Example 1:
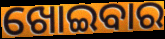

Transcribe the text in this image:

ଖୋଇବାର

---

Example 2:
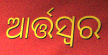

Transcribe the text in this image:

ଆର୍ତ୍ତସ୍ୱର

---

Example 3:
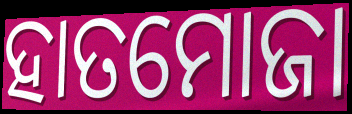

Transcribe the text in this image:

ହାତମୋଜା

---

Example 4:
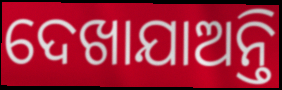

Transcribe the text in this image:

ଦେଖାଯାଅନ୍ତି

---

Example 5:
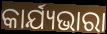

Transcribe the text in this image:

କାର୍ଯ୍ୟଭାରା